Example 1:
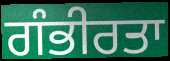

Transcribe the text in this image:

ਗੰਭੀਰਤਾ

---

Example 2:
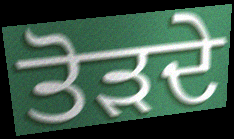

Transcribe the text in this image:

ਤੋੜਦੇ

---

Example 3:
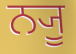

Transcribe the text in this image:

ਨ੍ਯੂ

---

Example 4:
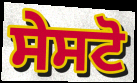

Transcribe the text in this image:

ਸੇਸਟੋ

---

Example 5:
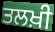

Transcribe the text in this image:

ਤਲਖ਼ੀ